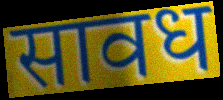
सावध